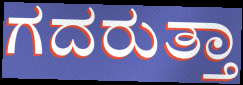
ಗದರುತ್ತಾ